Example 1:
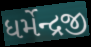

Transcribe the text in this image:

ધર્મેન્દ્રજી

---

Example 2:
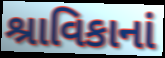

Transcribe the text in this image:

શ્રાવિકાનાં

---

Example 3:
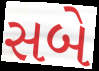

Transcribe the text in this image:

સબે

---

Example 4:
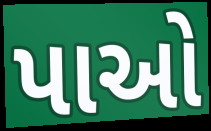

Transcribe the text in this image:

પાઓ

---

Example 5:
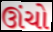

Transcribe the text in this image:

ઊંચો